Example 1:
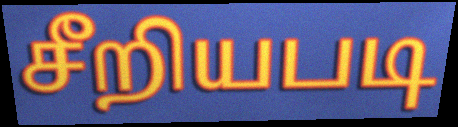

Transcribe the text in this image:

சீறியபடி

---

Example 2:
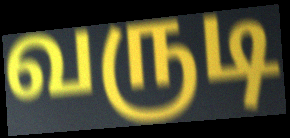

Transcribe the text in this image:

வருடி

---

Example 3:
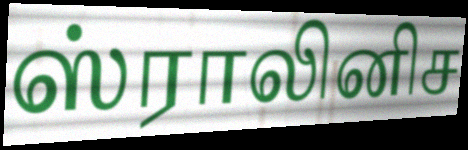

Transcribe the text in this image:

ஸ்ராலினிச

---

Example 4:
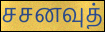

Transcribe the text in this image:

சசனவுத்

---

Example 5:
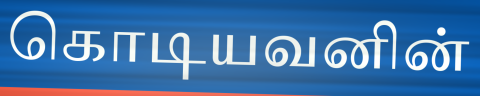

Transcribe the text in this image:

கொடியவனின்